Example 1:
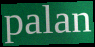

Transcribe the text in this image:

palan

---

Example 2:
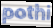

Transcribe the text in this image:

pothi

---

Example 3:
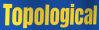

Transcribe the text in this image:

Topological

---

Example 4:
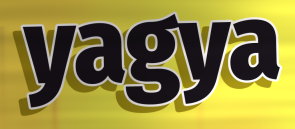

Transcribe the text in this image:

yagya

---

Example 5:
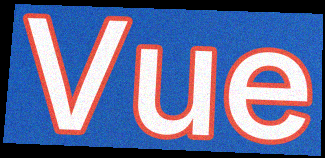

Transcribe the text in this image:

Vue